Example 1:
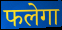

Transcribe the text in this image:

फलेगा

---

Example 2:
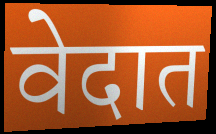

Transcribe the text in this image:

वेदात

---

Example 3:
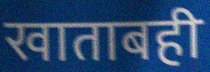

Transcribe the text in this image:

खाताबही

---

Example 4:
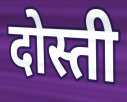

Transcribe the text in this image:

दोस्ती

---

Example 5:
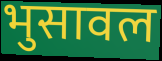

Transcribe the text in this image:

भुसावल